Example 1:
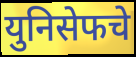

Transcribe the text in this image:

युनिसेफचे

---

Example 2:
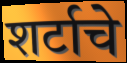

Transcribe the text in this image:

शर्टाचे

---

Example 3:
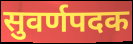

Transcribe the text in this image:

सुवर्णपदक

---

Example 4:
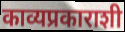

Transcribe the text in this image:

काव्यप्रकाराशी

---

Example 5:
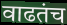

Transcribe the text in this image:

वाढतंच